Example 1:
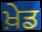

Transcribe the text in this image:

ਖ਼ੇਡ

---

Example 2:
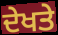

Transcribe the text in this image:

ਦੇਖਤੇ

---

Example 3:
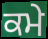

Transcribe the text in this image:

ਕਮੇ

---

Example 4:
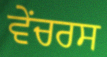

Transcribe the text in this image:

ਵੇਂਚਰਸ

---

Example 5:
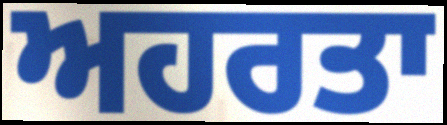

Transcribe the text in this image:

ਅਹਰਤਾ